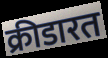
क्रीडारत